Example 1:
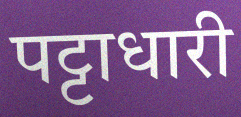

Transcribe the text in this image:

पट्टाधारी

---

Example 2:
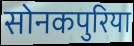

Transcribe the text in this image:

सोनकपुरिया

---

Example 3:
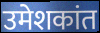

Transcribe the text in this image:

उमेशकांत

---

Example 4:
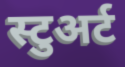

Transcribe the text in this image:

स्टुअर्ट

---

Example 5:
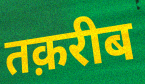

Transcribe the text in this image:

तक़रीब